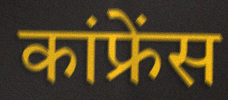
कांफ्रेंस